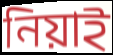
নিয়াই